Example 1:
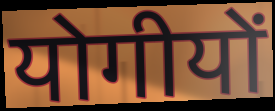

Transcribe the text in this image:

योगीयों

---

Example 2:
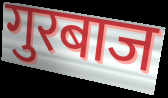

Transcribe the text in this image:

गुरबाज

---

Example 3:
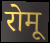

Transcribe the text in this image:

रोमू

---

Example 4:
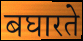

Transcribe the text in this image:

बघारते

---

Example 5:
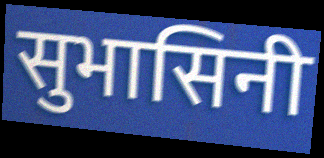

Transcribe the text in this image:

सुभासिनी